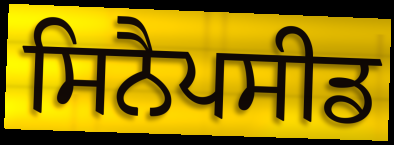
ਸਿਨੈਪਸੀਡ